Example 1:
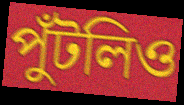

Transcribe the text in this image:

পুঁটলিও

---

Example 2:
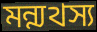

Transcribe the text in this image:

মন্মথস্য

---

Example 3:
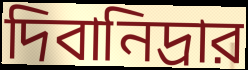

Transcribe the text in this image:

দিবানিদ্রার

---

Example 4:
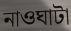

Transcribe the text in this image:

নাওঘাটা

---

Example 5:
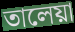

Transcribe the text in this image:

তালেয়া